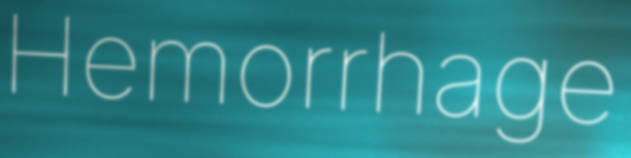
Hemorrhage